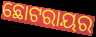
ଛୋଟରାୟର